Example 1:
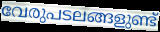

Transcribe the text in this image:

വേരുപടലങ്ങളുണ്ട്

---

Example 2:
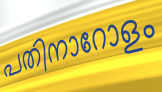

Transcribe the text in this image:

പതിനാറോളം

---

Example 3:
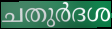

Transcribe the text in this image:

ചതുർദശ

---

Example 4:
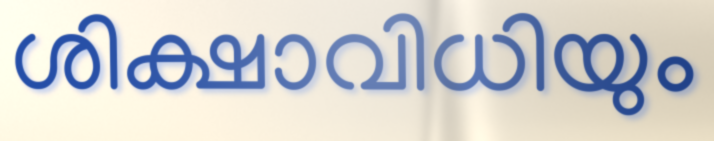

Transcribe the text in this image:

ശിക്ഷാവിധിയും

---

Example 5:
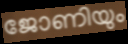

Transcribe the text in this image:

ജോണിയും